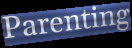
Parenting